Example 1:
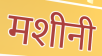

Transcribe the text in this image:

मशीनी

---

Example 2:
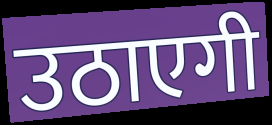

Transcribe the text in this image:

उठाएगी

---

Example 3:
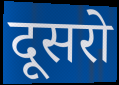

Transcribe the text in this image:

दूसरो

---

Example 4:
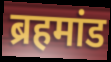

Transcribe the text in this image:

ब्रहमांड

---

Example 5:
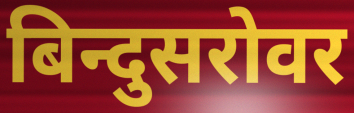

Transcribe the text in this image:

बिन्दुसरोवर